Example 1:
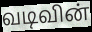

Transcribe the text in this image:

வடிவின்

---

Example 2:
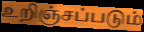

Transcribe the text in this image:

உறிஞ்சப்படும்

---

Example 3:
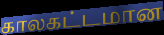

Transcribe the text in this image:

காலகட்டமான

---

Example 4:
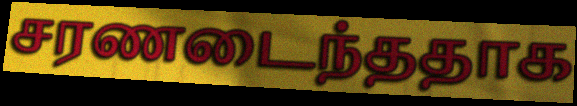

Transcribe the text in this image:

சரணடைந்ததாக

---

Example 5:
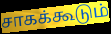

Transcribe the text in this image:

சாகக்கூடும்